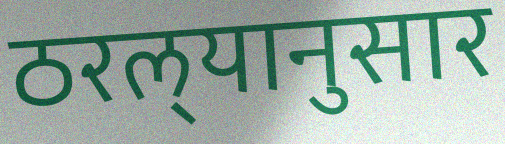
ठरल्यानुसार